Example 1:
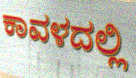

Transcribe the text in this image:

ಕಾವಳದಲ್ಲಿ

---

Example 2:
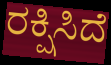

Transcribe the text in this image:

ರಕ್ಷಿಸಿದೆ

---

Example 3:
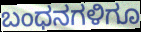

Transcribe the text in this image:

ಬಂಧನಗಳಿಗೂ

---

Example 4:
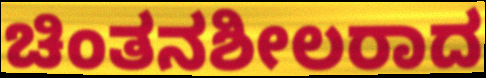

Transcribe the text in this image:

ಚಿಂತನಶೀಲರಾದ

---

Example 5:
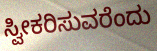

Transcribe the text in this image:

ಸ್ವೀಕರಿಸುವರೆಂದು